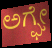
ಅಗ್ಘೇ